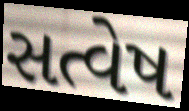
સત્વેષ